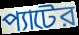
প্যাটের